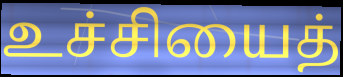
உச்சியைத்